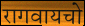
रागवायचो